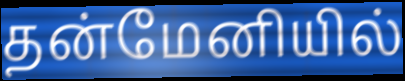
தன்மேனியில்